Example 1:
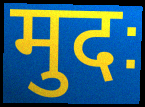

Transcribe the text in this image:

मुदः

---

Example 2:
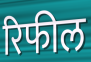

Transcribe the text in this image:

रिफील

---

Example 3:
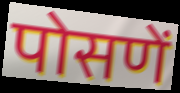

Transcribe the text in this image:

पोसणें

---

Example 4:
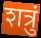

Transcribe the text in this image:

शत्रुं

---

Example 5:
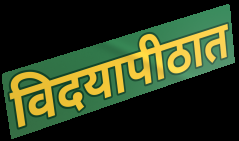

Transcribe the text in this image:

विदयापीठात